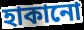
হাকানো